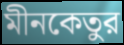
মীনকেতুর